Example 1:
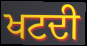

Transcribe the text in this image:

ਖਟਦੀ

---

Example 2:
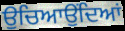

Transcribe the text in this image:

ਉਚਿਆਉਂਦਿਆਂ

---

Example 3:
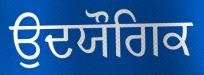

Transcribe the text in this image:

ਉਦਯੌਗਿਕ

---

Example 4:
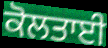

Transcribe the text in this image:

ਕੋਲਤਾਈ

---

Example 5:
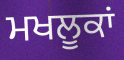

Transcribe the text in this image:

ਮਖਲੂਕਾਂ